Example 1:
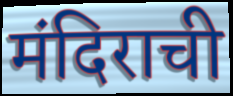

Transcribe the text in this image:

मंदिराची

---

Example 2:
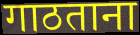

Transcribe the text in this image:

गाठताना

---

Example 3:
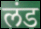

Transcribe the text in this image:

लंड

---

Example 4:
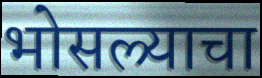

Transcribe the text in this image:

भोसल्याचा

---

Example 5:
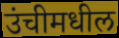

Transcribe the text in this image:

उंचीमधील